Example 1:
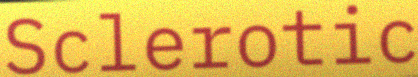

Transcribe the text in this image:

Sclerotic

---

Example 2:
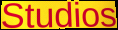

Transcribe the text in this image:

Studios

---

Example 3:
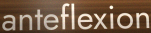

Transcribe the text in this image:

anteflexion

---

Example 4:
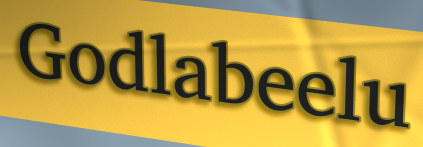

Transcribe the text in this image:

Godlabeelu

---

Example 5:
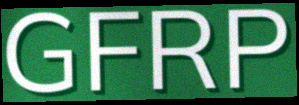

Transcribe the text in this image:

GFRP